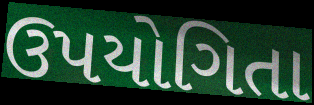
ઉપયોગિતા